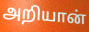
அறியான்